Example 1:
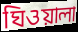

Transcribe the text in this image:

ঘিওয়ালা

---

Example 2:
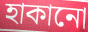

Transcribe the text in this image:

হাকানো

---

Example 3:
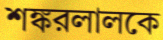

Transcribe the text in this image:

শঙ্করলালকে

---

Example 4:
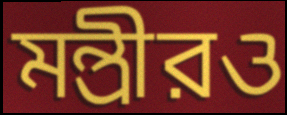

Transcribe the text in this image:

মন্ত্রীরও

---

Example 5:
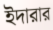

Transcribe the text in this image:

ইদারার